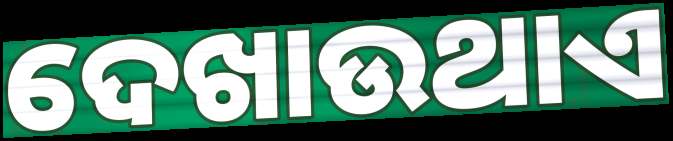
ଦେଖାଉଥାଏ